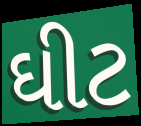
ઘીટ